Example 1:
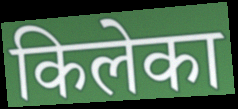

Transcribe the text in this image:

किलेका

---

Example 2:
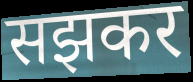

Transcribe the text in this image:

सझकर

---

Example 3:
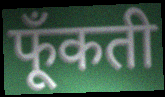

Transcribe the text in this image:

फूँकती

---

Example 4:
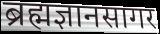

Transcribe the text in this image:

ब्रह्मज्ञानसागर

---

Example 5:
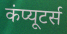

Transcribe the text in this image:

कंप्यूटर्स